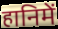
हानिमें